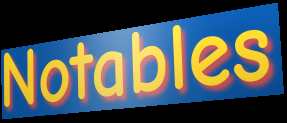
Notables